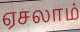
ஏசலாம்